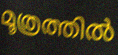
മൂത്രത്തിൽ